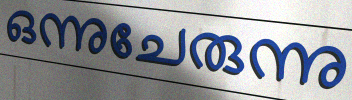
ഒന്നുചേരുന്നു